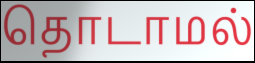
தொடாமல்